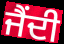
ਜੈਂਦੀ